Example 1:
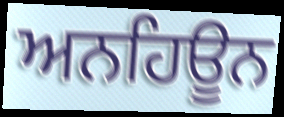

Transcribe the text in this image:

ਅਨਹਿਊਨ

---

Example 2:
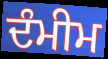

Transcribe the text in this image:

ਦੰਮੀਮ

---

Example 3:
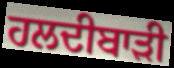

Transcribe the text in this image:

ਹਲਦੀਬਾੜੀ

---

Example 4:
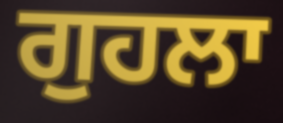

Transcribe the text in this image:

ਗੁਹਲਾ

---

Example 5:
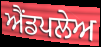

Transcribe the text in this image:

ਐਂਡਪਲੇਅ